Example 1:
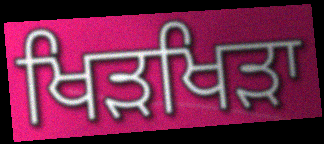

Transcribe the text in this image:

ਖਿੜਖਿੜਾ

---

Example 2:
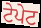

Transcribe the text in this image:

ਟੇਪੇਟ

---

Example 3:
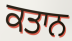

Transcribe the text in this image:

ਕਤਾਨ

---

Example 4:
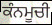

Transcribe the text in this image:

ਕੰਨਮੂਚੀ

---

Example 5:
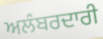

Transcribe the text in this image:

ਅਲੰਬਰਦਾਰੀ